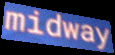
midway